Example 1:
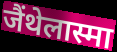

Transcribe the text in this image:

जैंथेलास्मा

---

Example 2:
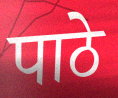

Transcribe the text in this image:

पाठे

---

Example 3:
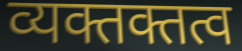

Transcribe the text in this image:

व्यक्तक्तत्व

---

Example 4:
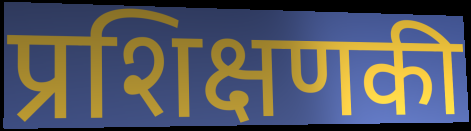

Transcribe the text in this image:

प्रशिक्षणकी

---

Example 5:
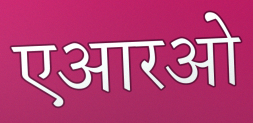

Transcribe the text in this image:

एआरओ